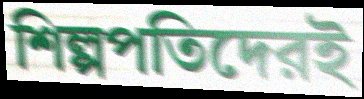
শিল্পপতিদেরই